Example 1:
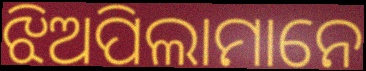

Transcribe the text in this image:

ଝିଅପିଲାମାନେ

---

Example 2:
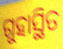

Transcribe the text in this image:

ଗୁହାସ୍ଥିତ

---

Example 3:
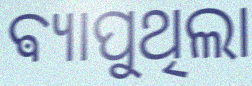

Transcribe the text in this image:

ଵ୍ୟାପୁଥିଲା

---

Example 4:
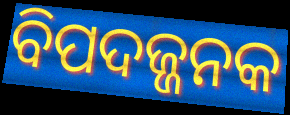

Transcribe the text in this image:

ବିପଦଜ୍ଜନକ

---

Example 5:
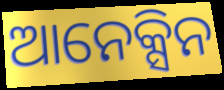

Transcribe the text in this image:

ଆନେକ୍ସିନ